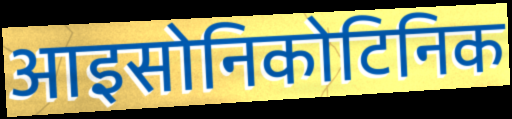
आइसोनिकोटिनिक